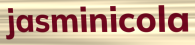
jasminicola